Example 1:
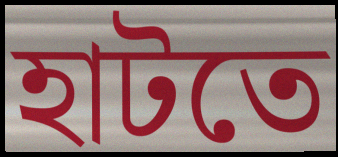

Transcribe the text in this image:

হাটতে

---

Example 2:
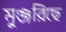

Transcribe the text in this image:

মুঞ্জরিছে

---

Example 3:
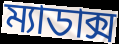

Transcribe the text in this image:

ম্যাডাক্স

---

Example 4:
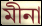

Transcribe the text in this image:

মীনা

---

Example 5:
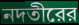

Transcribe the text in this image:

নদতীরের